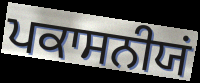
ਪਕਾਸਨੀਯਂ